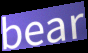
bear